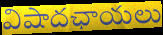
విషాదఛాయలు